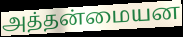
அத்தன்மையன